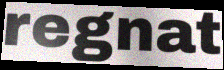
regnat